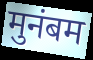
मुनंबम